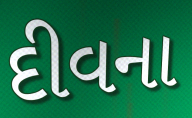
દીવના